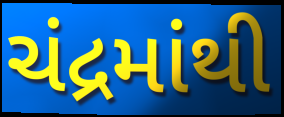
ચંદ્રમાંથી